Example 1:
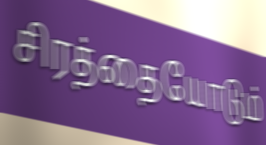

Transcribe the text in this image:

சிரத்தையோடும்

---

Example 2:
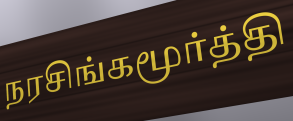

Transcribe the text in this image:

நரசிங்கமூர்த்தி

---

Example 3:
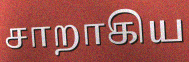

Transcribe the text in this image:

சாறாகிய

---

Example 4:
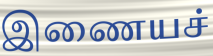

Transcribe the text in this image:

இணையச்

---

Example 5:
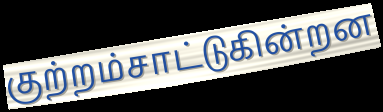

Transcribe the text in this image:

குற்றம்சாட்டுகின்றன